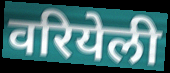
वरियेली